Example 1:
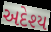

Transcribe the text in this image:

અદેશ્ય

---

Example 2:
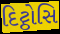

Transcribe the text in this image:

દિટ્ઠોસિ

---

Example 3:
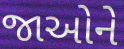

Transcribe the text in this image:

જાઓને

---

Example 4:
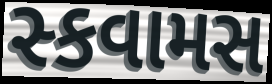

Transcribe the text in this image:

સ્કવામસ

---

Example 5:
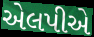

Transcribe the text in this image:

એલપીએ